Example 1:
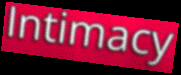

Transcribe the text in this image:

Intimacy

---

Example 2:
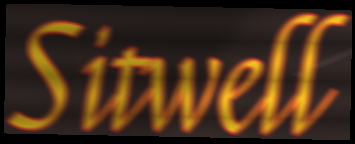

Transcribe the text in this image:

Sitwell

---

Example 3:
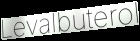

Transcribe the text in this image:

Levalbuterol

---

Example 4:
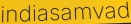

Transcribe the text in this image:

indiasamvad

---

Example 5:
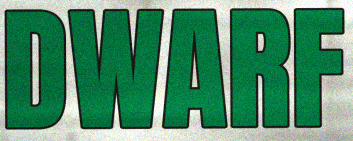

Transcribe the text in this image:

DWARF